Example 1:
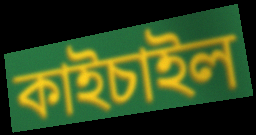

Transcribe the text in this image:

কাইচাইল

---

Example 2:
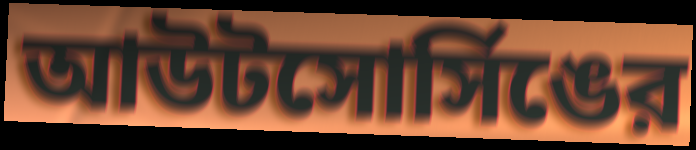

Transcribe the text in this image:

আউটসোর্সিঙের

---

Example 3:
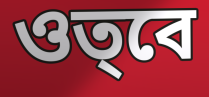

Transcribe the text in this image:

ওত্‌বে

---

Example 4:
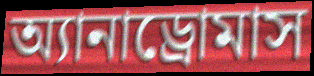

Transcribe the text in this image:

অ্যানাড্রোমাস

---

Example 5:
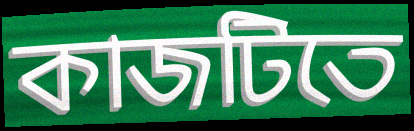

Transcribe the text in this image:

কাজটিতে